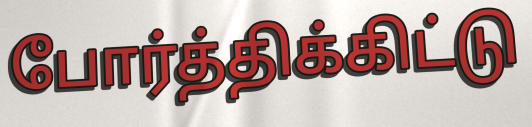
போர்த்திக்கிட்டு